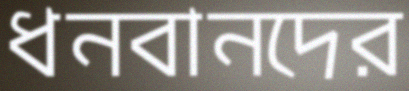
ধনবানদের